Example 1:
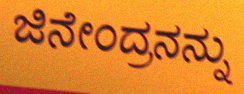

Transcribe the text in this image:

ಜಿನೇಂದ್ರನನ್ನು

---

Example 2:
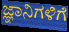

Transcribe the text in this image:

ಜ್ಞಾನಿಗಳಿಗೆ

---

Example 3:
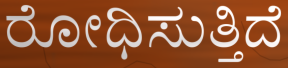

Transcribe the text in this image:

ರೋಧಿಸುತ್ತಿದೆ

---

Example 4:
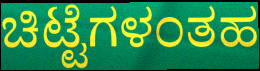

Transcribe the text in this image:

ಚಿಟ್ಟೆಗಳಂತಹ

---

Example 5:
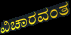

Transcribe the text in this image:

ವಿಚಾರವಂತ